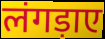
लंगड़ाए